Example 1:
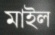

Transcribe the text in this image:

মাইল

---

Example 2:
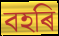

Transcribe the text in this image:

বহৰি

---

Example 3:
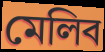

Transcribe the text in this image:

মেলিব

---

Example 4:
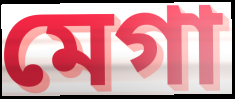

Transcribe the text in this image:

মেগা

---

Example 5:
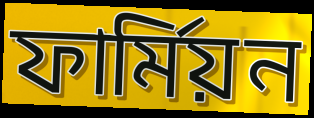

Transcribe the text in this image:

ফাৰ্মিয়ন